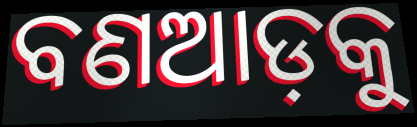
ବଣଆଡ଼କୁ